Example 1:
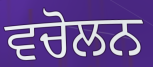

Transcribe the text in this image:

ਵਚੋਲਨ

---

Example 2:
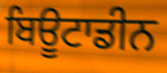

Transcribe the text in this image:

ਬਿਊਟਾਡੀਨ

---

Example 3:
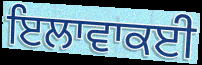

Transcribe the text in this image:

ਇਲਾਵਾਕਈ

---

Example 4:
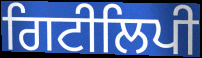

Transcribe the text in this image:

ਗਿਟੀਲਿਪੀ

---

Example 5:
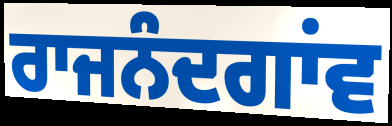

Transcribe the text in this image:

ਰਾਜਨੰਦਗਾਂਵ